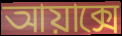
আয়াক্সে